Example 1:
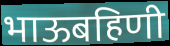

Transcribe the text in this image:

भाऊबहिणी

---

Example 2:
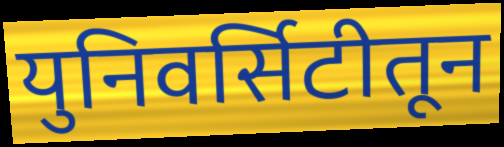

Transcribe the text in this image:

युनिवर्सिटीतून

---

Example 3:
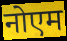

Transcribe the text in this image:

नोएम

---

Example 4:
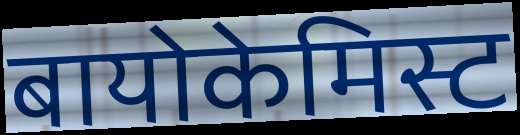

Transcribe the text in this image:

बायोकेमिस्ट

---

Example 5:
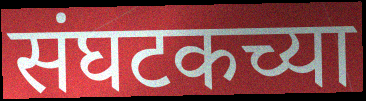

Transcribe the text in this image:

संघटकच्या